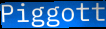
Piggott